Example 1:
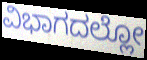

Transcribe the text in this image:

ವಿಭಾಗದಲ್ಲೋ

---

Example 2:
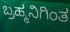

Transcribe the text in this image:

ಬ್ರಹ್ಮನಿಗಿಂತ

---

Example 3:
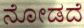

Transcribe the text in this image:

ನೋಡದೆ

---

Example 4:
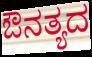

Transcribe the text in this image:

ಔನತ್ಯದ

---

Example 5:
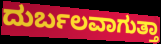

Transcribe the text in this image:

ದುರ್ಬಲವಾಗುತ್ತಾ